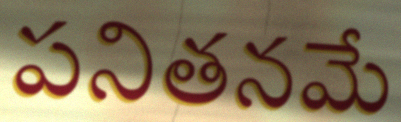
పనితనమే